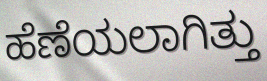
ಹೆಣೆಯಲಾಗಿತ್ತು